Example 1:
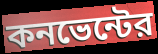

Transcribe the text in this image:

কনভেন্টের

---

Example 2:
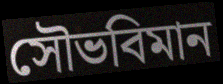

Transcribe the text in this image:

সৌভবিমান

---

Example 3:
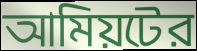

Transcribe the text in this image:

আমিয়টের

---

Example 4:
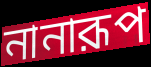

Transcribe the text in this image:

নানারূপ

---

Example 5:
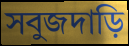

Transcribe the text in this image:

সবুজদাড়ি